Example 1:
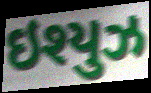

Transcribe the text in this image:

ઇશ્યુઝ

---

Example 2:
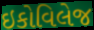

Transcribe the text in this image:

ઇકોવિલેજ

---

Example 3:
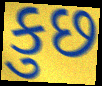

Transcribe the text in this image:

કુછ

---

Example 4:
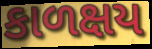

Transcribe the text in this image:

કાળક્ષય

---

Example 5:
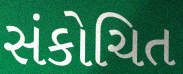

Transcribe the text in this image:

સંકોચિત